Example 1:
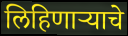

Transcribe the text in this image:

लिहिणाऱ्याचे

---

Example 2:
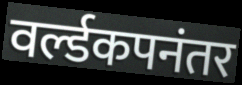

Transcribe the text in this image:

वर्ल्डकपनंतर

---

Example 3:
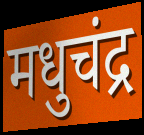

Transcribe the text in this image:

मधुचंद्र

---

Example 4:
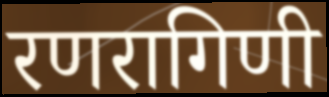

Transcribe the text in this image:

रणरागिणी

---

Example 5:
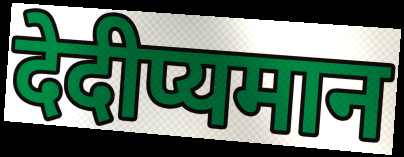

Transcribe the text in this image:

देदीप्यमान